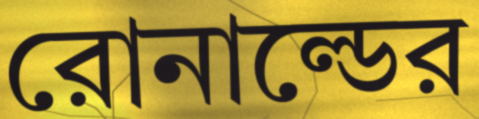
রোনাল্ডের